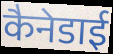
कैनेडाई